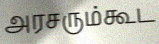
அரசரும்கூட